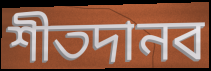
শীতদানব